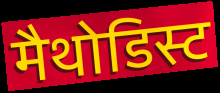
मैथोडिस्ट